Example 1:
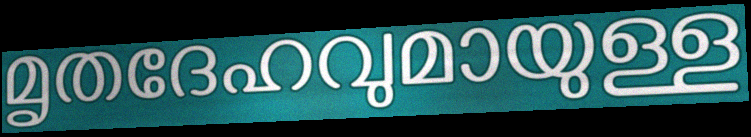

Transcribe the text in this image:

മൃതദേഹവുമായുള്ള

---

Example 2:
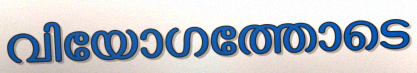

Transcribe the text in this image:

വിയോഗത്തോടെ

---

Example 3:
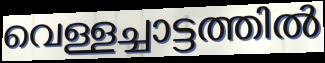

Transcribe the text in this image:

വെള്ളച്ചാട്ടത്തിൽ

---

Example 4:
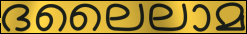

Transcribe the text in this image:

ദലൈലാമ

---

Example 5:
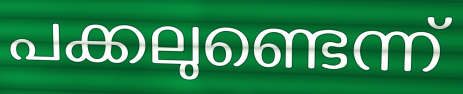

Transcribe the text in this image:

പക്കലുണ്ടെന്ന്